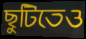
ছুটিতেও